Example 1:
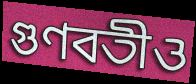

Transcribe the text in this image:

গুণবতীও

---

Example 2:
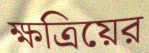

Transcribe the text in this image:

ক্ষত্রিয়ের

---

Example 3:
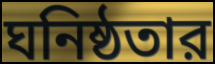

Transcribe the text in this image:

ঘনিষ্ঠতার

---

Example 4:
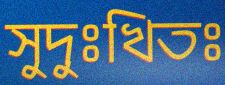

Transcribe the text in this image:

সুদুঃখিতঃ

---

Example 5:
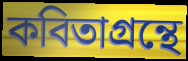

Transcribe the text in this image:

কবিতাগ্রন্থে